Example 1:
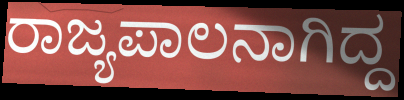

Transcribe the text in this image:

ರಾಜ್ಯಪಾಲನಾಗಿದ್ದ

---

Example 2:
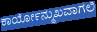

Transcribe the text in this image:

ಕಾರ್ಯೋನ್ಮುಖವಾಗಲಿ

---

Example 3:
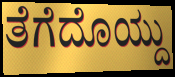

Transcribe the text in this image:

ತೆಗೆದೊಯ್ದು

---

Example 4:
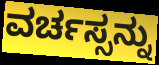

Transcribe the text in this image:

ವರ್ಚಸ್ಸನ್ನು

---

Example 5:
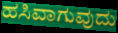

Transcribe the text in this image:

ಹಸಿವಾಗುವುದು